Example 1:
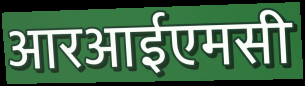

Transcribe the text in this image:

आरआईएमसी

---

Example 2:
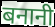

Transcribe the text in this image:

बनानी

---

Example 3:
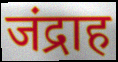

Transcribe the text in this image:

जंद्राह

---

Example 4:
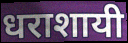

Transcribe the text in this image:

धराशायी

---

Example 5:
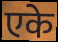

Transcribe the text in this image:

एके